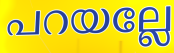
പറയല്ലേ